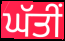
ਘੱਤੀਂ